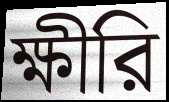
ক্ষীরি